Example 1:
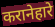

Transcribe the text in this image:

करानेहारे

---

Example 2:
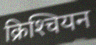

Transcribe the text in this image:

क्रिश्‍चियन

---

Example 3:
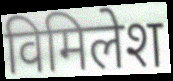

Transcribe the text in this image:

विमिलेश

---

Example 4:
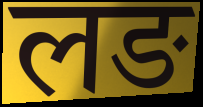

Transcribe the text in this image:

लङ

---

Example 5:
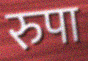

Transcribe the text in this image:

रुपा